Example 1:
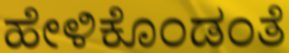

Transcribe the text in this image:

ಹೇಳಿಕೊಂಡಂತೆ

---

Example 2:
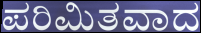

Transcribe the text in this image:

ಪರಿಮಿತವಾದ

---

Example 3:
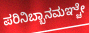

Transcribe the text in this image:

ಪರಿನಿಬ್ಬಾನಮಞ್ಚೇ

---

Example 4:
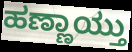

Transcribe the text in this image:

ಹಣ್ಣಾಯ್ತು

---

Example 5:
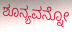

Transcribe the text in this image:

ಶೂನ್ಯವನ್ನೋ